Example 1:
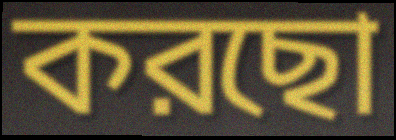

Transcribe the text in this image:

করছো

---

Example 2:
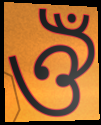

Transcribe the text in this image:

ঔঁ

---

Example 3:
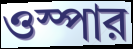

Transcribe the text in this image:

ওস্পার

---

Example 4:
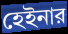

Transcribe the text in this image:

হেইনার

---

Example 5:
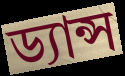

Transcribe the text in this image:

ড্যান্স